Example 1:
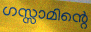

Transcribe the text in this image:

ഗസ്സാമിന്റെ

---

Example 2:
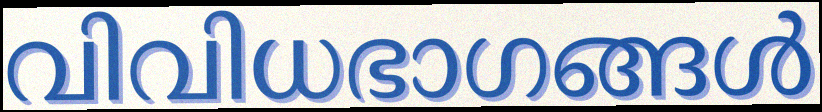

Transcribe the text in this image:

വിവിധഭാഗങ്ങൾ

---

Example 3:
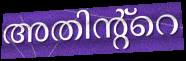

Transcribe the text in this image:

അതിന്റ്റെ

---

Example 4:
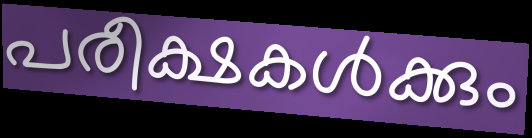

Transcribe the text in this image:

പരീക്ഷകൾക്കും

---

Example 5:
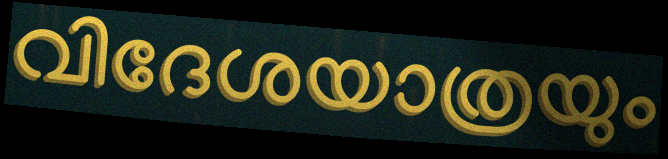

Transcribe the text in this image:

വിദേശയാത്രയും